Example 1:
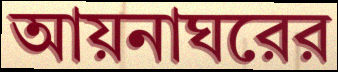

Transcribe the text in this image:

আয়নাঘরের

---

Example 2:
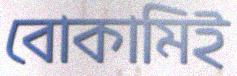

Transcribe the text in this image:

বোকামিই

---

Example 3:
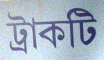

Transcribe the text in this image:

ট্রাকটি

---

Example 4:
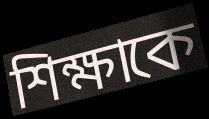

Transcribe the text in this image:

শিক্ষাকে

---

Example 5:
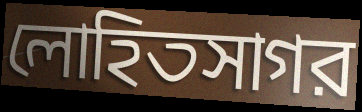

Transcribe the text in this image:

লোহিতসাগর